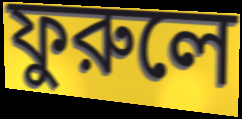
ফুরুলে